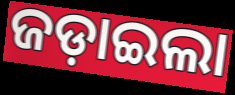
ଜଡ଼ାଇଲା